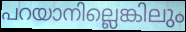
പറയാനില്ലെങ്കിലും